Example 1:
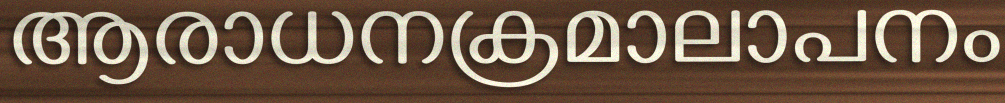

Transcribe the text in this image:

ആരാധനക്രമാലാപനം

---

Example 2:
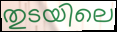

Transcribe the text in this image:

തുടയിലെ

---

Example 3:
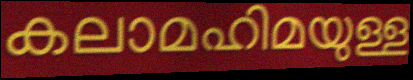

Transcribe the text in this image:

കലാമഹിമയുള്ള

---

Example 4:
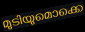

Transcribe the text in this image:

മുടിയുമൊക്കെ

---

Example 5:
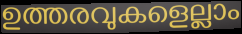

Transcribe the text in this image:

ഉത്തരവുകളെല്ലാം